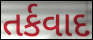
તર્કવાદ